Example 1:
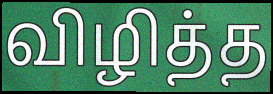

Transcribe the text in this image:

விழித்த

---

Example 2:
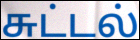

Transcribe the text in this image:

சுட்டல்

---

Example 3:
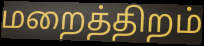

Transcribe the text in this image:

மறைத்திறம்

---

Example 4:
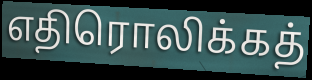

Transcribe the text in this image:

எதிரொலிக்கத்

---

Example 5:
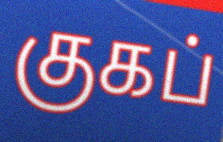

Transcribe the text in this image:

குகப்